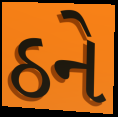
ઠને